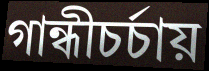
গান্ধীচর্চায়